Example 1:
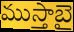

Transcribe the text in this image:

ముస్తాబై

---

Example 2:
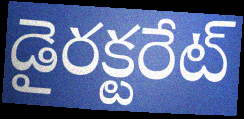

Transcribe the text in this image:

డైరక్టరేట్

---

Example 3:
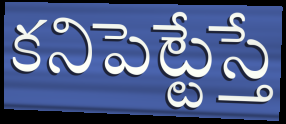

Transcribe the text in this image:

కనిపెట్టేస్తే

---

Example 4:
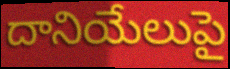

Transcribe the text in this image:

దానియేలుపై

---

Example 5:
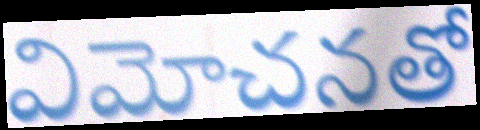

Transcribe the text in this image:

విమోచనతో